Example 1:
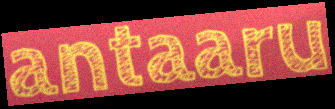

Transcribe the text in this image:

antaaru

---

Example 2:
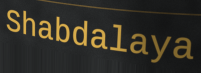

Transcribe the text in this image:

Shabdalaya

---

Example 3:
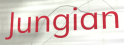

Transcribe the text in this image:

Jungian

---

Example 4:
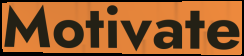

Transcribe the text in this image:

Motivate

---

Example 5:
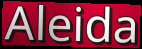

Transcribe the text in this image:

Aleida